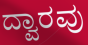
ದ್ವಾರವು